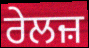
ਰੇਲਜ਼